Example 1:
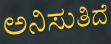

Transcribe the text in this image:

ಅನಿಸುತಿದೆ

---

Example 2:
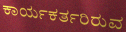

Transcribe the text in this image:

ಕಾರ್ಯಕರ್ತರಿರುವ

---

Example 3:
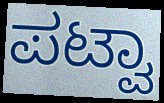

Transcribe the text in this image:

ಪಟ್ವಾ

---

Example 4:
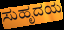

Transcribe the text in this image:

ಸುಹೃದಯ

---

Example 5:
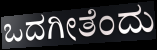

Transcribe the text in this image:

ಒದಗೀತೆಂದು